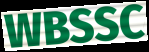
WBSSC